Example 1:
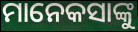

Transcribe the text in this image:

ମାନେକସାଙ୍କୁ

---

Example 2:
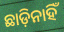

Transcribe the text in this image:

ଛାଡ଼ିନାହିଁ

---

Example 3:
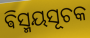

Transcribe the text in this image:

ଵିସ୍ମୟସୂଚକ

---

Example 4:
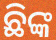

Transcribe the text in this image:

ଛିଙ୍କ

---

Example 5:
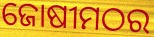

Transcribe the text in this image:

ଜୋଷୀମଠର